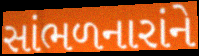
સાંભળનારાંને